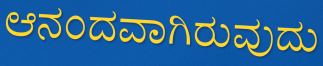
ಆನಂದವಾಗಿರುವುದು